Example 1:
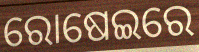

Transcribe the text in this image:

ରୋଷେଇରେ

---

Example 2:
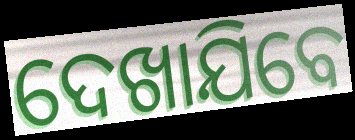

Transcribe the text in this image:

ଦେଖାଯିବେ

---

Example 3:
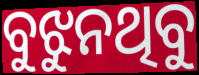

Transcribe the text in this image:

ବୁଝୁନଥିବୁ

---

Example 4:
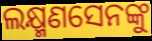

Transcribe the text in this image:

ଲକ୍ଷ୍ମଣସେନଙ୍କୁ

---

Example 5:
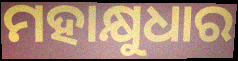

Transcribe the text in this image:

ମହାକ୍ଷୁଧାର